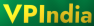
VPIndia